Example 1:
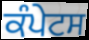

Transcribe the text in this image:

ਕੰਪੇਟਸ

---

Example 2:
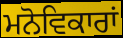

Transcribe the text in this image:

ਮਨੋਵਿਕਾਰਾਂ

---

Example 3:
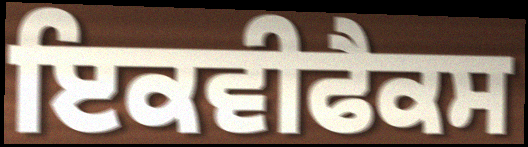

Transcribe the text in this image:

ਇਕਵੀਫੈਕਸ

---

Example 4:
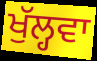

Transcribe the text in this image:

ਖੁੱਲ੍ਹਵਾ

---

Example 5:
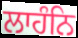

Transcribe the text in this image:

ਲਾਹੰਨਿ